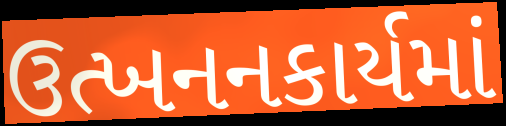
ઉત્ખનનકાર્યમાં